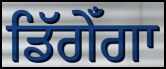
ਡਿੱਗੇਁਗਾ